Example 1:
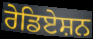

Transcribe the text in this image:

ਰੇਡਿਏਸ਼ਨ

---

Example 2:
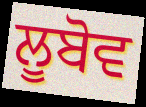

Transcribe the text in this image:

ਲੂਬੋਵ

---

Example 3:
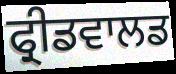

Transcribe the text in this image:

ਫ੍ਰੀਡਵਾਲਡ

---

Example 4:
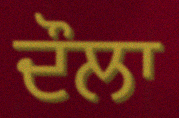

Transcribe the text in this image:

ਦੌਲਾ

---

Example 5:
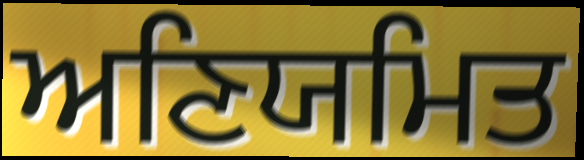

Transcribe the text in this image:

ਅਣਿਯਮਿਤ